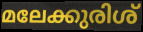
മലേക്കുരിശ്